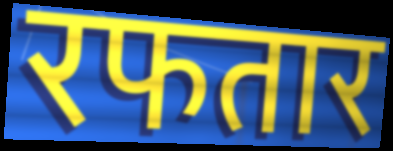
रफतार